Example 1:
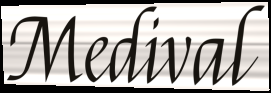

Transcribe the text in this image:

Medival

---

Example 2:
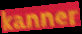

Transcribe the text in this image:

kanner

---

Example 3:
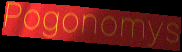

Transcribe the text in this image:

Pogonomys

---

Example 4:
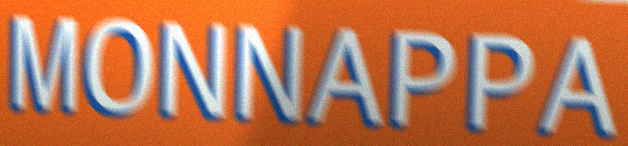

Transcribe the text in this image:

MONNAPPA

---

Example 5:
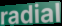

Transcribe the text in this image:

radial